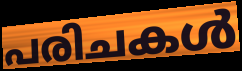
പരിചകൾ